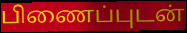
பிணைப்புடன்